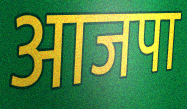
आजपा